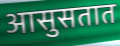
आसुसतात